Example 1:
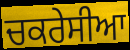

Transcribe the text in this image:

ਚਕਰੇਸੀਆ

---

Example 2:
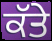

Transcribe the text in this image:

ਕੱਤੇ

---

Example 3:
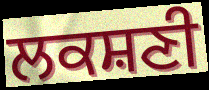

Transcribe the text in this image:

ਲਕਸ਼ਣੀ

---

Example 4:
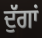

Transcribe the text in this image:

ਦੁੱਗਾਂ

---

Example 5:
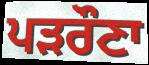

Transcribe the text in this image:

ਪੜਰੌਣਾ